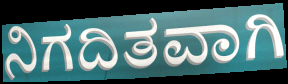
ನಿಗದಿತವಾಗಿ